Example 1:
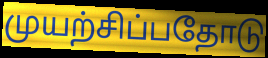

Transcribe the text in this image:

முயற்சிப்பதோடு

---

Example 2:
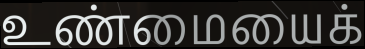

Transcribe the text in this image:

உண்மையைக்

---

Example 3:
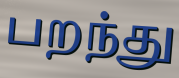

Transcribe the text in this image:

பறந்து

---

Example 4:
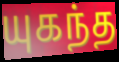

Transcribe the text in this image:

யுகந்த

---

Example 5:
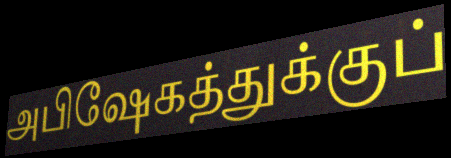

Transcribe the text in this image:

அபிஷேகத்துக்குப்